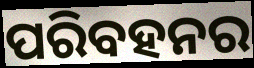
ପରିବହନର